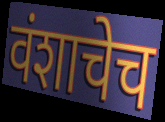
वंशाचेच